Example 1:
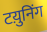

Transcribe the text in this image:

टय़ुनिंग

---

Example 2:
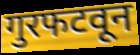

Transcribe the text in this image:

गुरफटवून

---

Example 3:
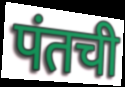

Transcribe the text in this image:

पंतची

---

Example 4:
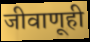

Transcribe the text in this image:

जीवाणूही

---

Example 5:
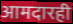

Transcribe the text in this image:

आमदारही